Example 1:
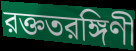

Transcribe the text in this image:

রক্ততরঙ্গিণী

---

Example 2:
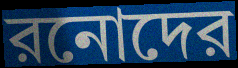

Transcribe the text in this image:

রনোদের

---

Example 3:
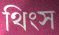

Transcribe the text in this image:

থিংস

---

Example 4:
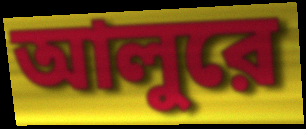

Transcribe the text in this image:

আলুরে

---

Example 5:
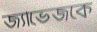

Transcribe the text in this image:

জ্যাভেজকে